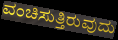
ವಂಚಿಸುತ್ತಿರುವುದು